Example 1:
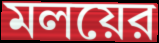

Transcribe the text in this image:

মলয়ের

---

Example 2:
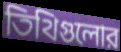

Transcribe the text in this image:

তিথিগুলোর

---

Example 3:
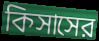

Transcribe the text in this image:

কিসাসের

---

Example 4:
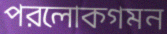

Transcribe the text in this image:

পরলোকগমন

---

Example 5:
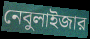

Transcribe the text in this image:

নেবুলাইজার